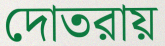
দোতরায়